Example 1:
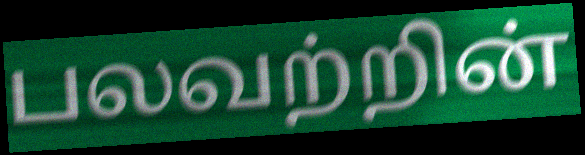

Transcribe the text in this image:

பலவற்றின்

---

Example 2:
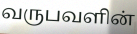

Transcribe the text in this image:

வருபவளின்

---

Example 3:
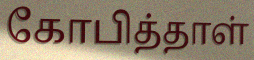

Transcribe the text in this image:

கோபித்தாள்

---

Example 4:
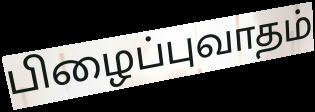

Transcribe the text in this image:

பிழைப்புவாதம்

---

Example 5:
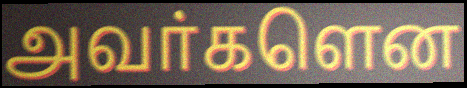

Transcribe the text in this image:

அவர்களென